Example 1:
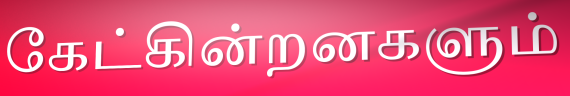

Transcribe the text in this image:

கேட்கின்றனகளும்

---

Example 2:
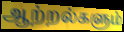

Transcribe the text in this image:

ஆற்றல்களும்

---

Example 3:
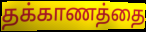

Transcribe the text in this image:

தக்காணத்தை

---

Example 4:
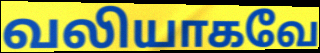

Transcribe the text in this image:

வலியாகவே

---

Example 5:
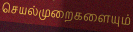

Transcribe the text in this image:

செயல்முறைகளையும்